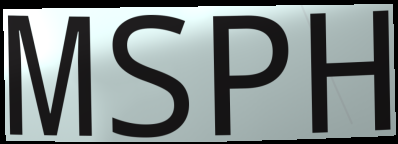
MSPH